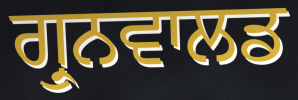
ਗ੍ਰੁਨਵਾਲਡ